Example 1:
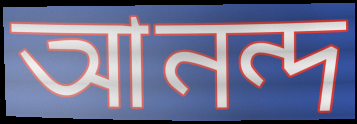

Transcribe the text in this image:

আনন্দ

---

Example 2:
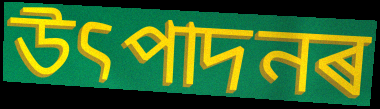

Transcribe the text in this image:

উৎপাদনৰ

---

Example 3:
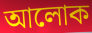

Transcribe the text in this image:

আলোক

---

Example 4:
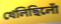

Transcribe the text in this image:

খেলিছিলোঁ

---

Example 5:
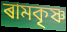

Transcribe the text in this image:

ৰামকৃষ্ণ